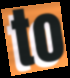
to